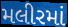
મલીરમાં